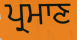
ਪ੍ਰਮਾਣ